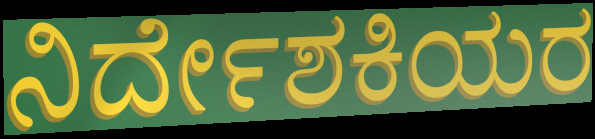
ನಿರ್ದೇಶಕಿಯರ